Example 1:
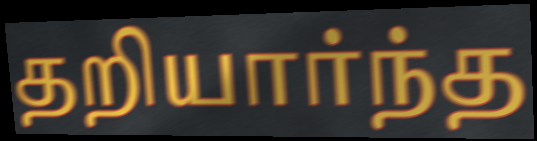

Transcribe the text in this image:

தறியார்ந்த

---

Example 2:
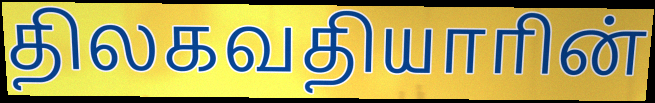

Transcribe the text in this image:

திலகவதியாரின்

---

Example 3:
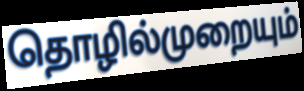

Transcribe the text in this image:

தொழில்முறையும்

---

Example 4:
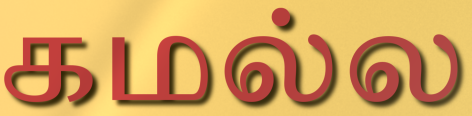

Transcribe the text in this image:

கமல்ல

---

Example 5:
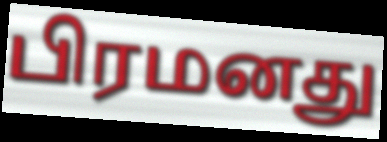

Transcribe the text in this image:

பிரமனது